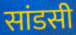
सांडसी